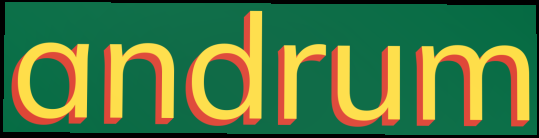
andrum